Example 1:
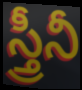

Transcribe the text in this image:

స్త్రీనీ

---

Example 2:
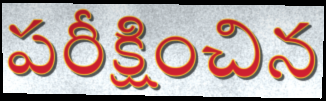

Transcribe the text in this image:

పరీక్షించిన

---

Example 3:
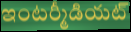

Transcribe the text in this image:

ఇంటర్మీడియట్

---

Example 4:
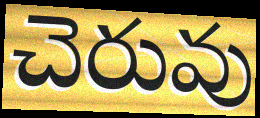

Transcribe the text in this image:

చెరువు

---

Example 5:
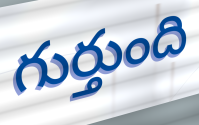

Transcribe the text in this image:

గుర్తుంది